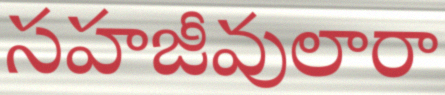
సహజీవులారా